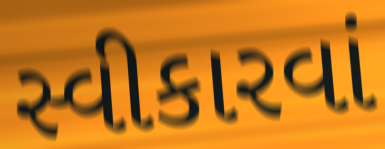
સ્વીકારવાં